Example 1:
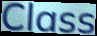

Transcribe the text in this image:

Class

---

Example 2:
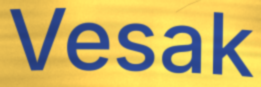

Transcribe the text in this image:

Vesak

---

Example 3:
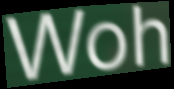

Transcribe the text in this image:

Woh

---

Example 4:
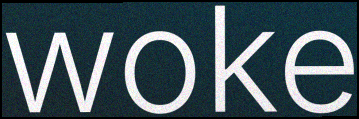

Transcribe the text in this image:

woke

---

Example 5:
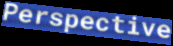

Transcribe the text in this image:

Perspective